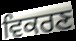
ਵਿਕਰਣ